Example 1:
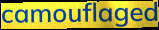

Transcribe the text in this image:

camouflaged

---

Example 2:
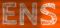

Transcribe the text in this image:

ENS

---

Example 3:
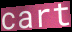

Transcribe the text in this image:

cart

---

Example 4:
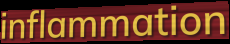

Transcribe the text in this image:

inflammation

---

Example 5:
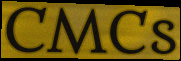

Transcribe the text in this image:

CMCs